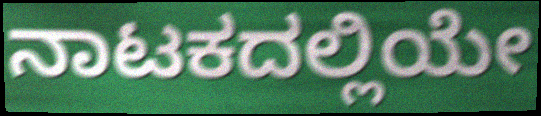
ನಾಟಕದಲ್ಲಿಯೇ